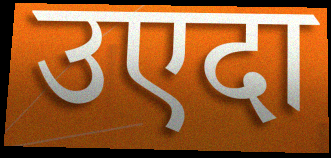
उएदा